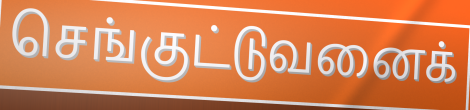
செங்குட்டுவனைக்